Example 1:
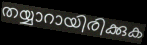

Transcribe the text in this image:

തയ്യാറായിരിക്കുക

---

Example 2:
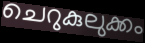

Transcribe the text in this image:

ചെറുകുലുക്കം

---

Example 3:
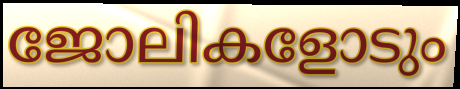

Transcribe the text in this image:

ജോലികളോടും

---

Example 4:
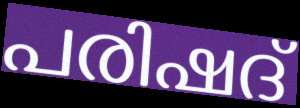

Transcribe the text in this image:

പരിഷദ്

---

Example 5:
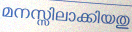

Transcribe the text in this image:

മനസ്സിലാക്കിയതു